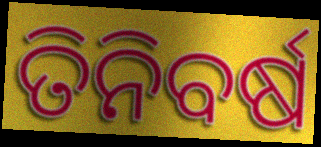
ତିନିବର୍ଷ